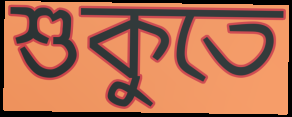
শুকুতে